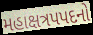
મહાક્ષત્રપપદનો